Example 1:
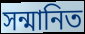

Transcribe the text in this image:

সন্মানিত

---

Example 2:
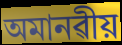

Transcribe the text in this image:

অমানৱীয়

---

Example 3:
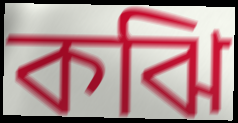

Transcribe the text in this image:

কঝি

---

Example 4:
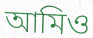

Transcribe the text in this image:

আমিও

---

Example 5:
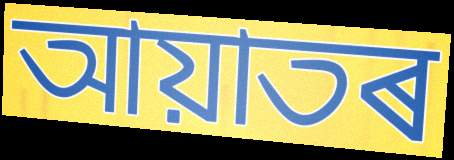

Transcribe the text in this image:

আয়াতৰ